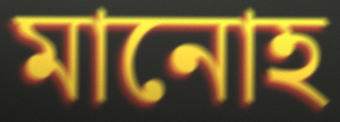
মানোহ